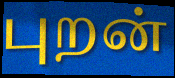
புறன்